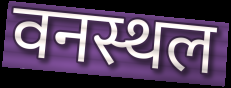
वनस्थल